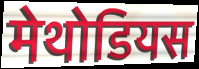
मेथोडियस